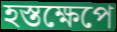
হস্তক্ষেপে